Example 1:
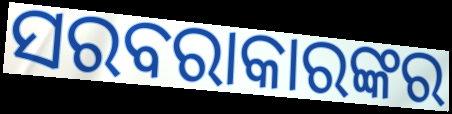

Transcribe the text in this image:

ସରବରାକାରଙ୍କର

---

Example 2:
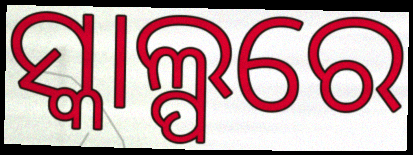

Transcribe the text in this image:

ସ୍କାଲ୍ପରେ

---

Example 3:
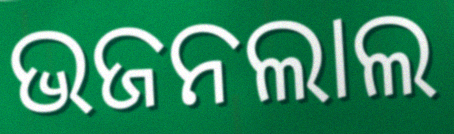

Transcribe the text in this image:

ଭଜନଲାଲ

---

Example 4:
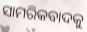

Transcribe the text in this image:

ସାମରିକବାଦକୁ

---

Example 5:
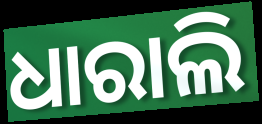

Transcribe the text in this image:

ଧାରାଲି